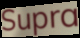
Supra